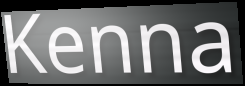
Kenna